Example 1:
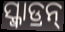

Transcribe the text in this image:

ସ୍କ୍ୱାଡ୍ରନ୍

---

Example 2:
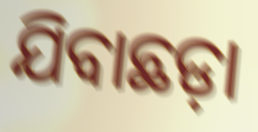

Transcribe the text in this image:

ଯିବାଛଡ଼ା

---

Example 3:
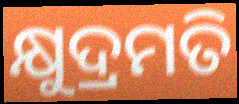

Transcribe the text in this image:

କ୍ଷୁଦ୍ରମତି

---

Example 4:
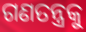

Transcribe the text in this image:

ଗଣତନ୍ତ୍ରକୁ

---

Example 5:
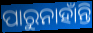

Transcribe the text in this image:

ପାରୁନାହାଁନ୍ତି